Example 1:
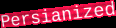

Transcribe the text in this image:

Persianized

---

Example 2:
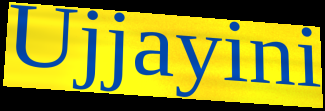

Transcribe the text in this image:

Ujjayini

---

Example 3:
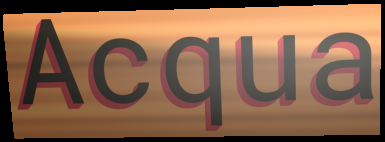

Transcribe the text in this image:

Acqua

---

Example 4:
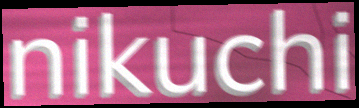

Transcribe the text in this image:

nikuchi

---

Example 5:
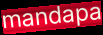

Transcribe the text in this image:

mandapa